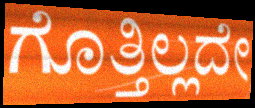
ಗೊತ್ತಿಲ್ಲದೇ